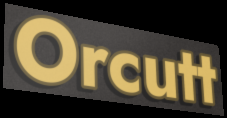
Orcutt